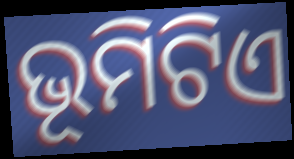
ଭୂମିଟିଏ